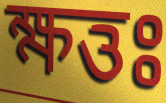
ক্ষত্তঃ